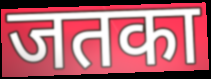
जतका